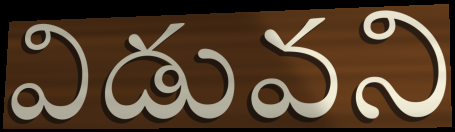
విడువని